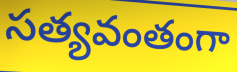
సత్యవంతంగా